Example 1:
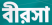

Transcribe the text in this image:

বীরসা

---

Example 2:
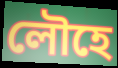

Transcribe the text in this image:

লৌহে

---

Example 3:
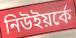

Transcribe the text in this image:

নিউইয়র্কে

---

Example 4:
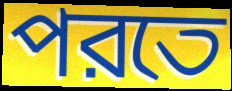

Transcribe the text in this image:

পরতে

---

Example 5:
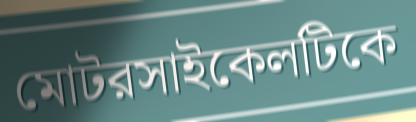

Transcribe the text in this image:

মোটরসাইকেলটিকে